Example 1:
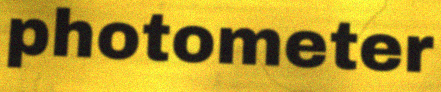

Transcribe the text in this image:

photometer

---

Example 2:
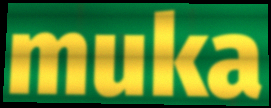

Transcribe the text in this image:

muka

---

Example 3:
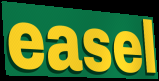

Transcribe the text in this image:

easel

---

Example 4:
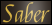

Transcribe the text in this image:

Saber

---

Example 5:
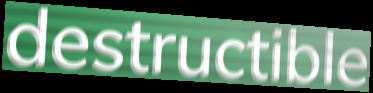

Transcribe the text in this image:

destructible